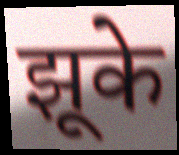
झूके